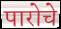
पारोचे